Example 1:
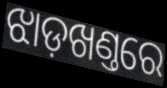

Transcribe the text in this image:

ଝାଡ଼ଖଣ୍ତରେ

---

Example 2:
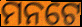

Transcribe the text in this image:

ମନଟେ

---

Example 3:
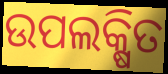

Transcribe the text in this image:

ଉପଲକ୍ଷିତ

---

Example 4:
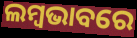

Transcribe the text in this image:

ଲମ୍ବଭାବରେ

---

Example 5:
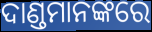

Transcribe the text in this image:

ଦାଣ୍ଡମାନଙ୍କରେ